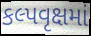
કલ્પવૃક્ષમાં